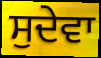
ਸੁਦੇਵਾ